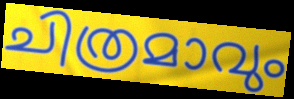
ചിത്രമാവും